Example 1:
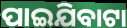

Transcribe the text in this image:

ପାଇଯିବାଟା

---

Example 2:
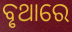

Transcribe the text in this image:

ବୃଥାରେ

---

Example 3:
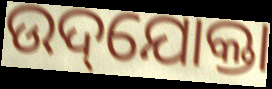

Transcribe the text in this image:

ଉଦ୍‌ଯୋକ୍ତା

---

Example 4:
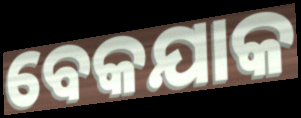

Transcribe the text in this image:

ବେକଯାକ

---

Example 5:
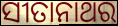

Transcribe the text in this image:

ସୀତାନାଥର